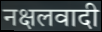
नक्षलवादी